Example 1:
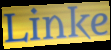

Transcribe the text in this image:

Linke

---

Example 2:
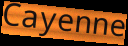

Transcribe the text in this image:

Cayenne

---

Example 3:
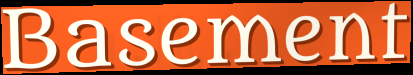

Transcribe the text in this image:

Basement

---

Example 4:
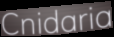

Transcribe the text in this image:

Cnidaria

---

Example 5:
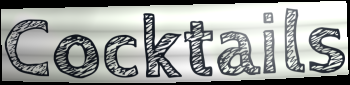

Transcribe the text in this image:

Cocktails